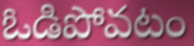
ఓడిపోవటం